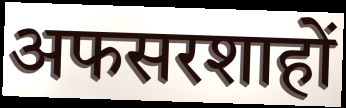
अफसरशाहों